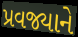
પ્રવજ્યાને